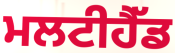
ਮਲਟੀਹੈੱਡ